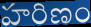
హరిణం